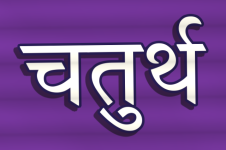
चतुर्थ